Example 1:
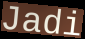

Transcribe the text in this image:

Jadi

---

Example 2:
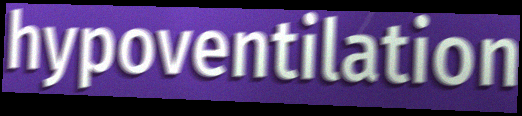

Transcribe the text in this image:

hypoventilation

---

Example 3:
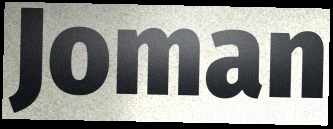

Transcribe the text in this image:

Joman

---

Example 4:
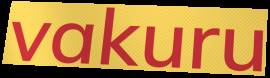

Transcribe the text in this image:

vakuru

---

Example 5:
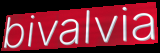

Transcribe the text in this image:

bivalvia